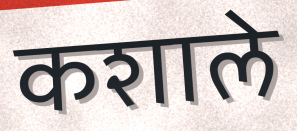
कशाले